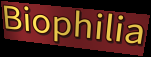
Biophilia